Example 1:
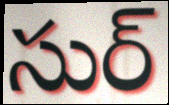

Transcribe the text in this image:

సుర్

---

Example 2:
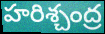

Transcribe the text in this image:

హరిశ్చంద్ర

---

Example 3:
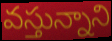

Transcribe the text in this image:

వస్తున్నాని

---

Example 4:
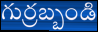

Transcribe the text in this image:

గుర్రబ్బండి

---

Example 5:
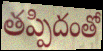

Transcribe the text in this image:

తప్పిదంతో